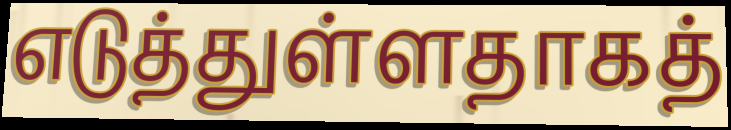
எடுத்துள்ளதாகத்